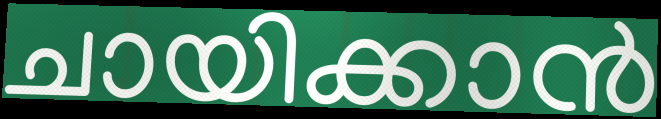
ചായിക്കാൻ